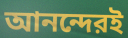
আনন্দেরই